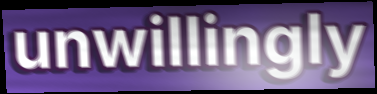
unwillingly